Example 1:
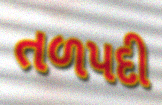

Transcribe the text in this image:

તળપદી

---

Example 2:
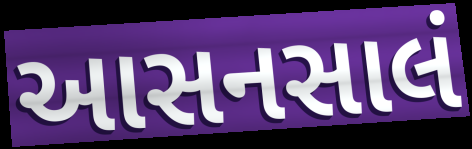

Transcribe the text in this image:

આસનસાલં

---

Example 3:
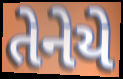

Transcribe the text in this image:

તેનેયે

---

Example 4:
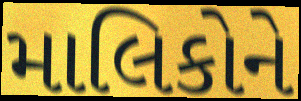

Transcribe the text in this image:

માલિકોને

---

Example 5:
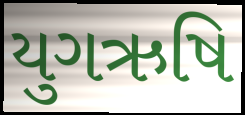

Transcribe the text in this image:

યુગઋષિ